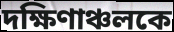
দক্ষিণাঞ্চলকে